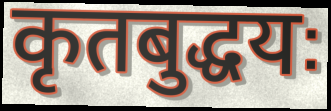
कृतबुद्धयः